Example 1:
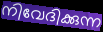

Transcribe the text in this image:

നിവേദിക്കുന്ന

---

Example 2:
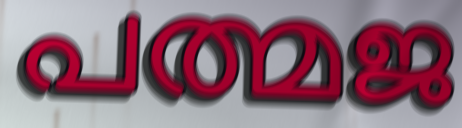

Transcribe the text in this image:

പത്മജ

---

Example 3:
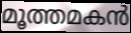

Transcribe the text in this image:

മൂത്തമകൻ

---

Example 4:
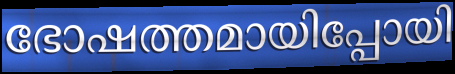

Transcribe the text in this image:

ഭോഷത്തമായിപ്പോയി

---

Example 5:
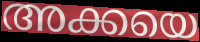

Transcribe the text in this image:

അക്കയെ